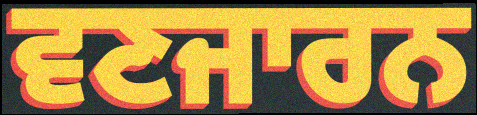
ਵਣਜਾਰਨ